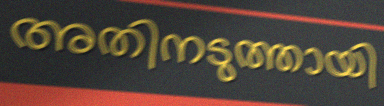
അതിനടുത്തായി